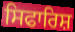
ਸਿਫਾਰਿਸ਼